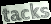
tacks